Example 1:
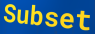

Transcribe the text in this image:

Subset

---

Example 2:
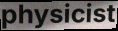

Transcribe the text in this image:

physicist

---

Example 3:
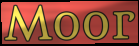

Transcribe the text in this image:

Moor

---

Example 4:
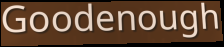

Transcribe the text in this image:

Goodenough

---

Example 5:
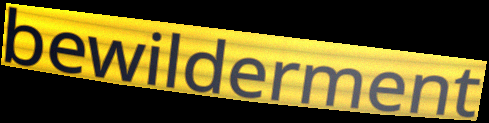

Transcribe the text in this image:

bewilderment